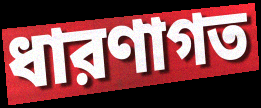
ধারণাগত